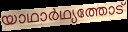
യാഥാർഥ്യത്തോട്